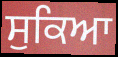
ਸੁਕਿਆ